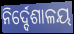
ନିର୍ଦ୍ଦେଶାଳୟ